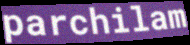
parchilam